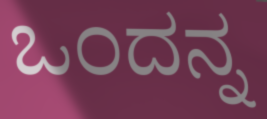
ಒಂದನ್ನ